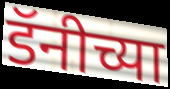
डॅनीच्या